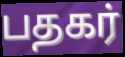
பதகர்